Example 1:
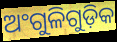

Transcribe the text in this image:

ଅଂଗୁଳିଗୁଡ଼ିକ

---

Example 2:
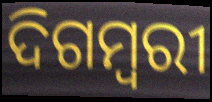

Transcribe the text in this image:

ଦିଗମ୍ୱରୀ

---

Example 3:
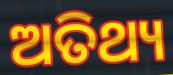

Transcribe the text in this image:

ଅତିଥ୍ୟ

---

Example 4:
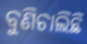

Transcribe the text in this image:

ବୁଣିଚାଲିଛି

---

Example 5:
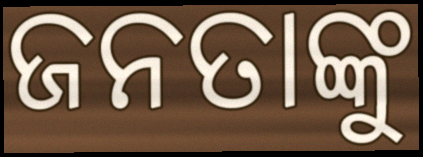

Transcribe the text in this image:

ଜନତାଙ୍କୁ